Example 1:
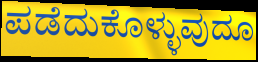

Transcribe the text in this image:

ಪಡೆದುಕೊಳ್ಳುವುದೂ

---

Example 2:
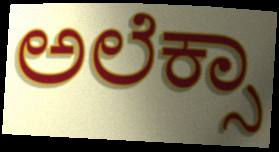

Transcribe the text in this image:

ಅಲೆಕ್ಸಾ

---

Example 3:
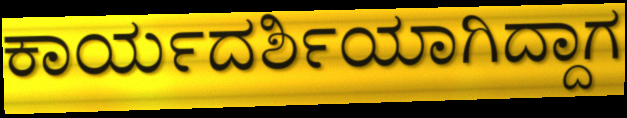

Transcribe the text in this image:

ಕಾರ್ಯದರ್ಶಿಯಾಗಿದ್ದಾಗ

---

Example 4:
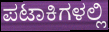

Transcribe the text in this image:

ಪಟಾಕಿಗಳಲ್ಲಿ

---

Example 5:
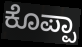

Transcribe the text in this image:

ಕೊಪ್ಪಾ